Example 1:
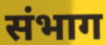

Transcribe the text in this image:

संभाग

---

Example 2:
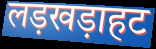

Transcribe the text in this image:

लड़खड़ाहट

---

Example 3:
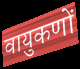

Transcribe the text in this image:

वायुकणों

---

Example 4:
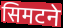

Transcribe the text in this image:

सिमटने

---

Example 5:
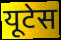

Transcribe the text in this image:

यूटेस